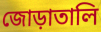
জোড়াতালি